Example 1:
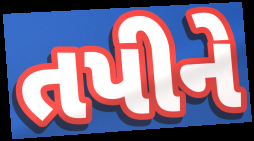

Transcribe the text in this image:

તપીને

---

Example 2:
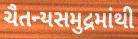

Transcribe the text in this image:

ચૈતન્યસમુદ્રમાંથી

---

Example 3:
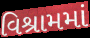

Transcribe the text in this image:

વિશ્રામમાં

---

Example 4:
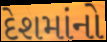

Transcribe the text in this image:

દેશમાંનો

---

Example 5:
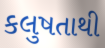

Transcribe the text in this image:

કલુષતાથી